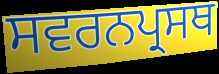
ਸਵਰਨਪ੍ਰਸਥ